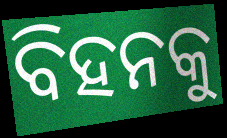
ବିହନକୁ